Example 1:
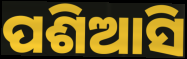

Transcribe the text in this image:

ପଶିଆସି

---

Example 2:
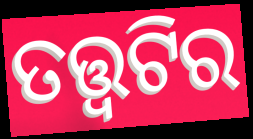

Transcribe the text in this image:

ତତ୍ତ୍ଵଟିର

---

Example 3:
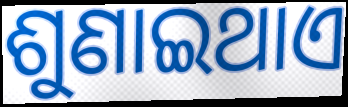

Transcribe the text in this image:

ଶୁଣାଇଥାଏ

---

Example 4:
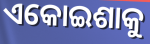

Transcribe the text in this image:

ଏକୋଇଶାକୁ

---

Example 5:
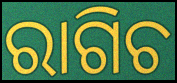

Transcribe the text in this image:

ରାଗିଚ